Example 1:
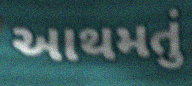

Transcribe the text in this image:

આથમતું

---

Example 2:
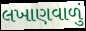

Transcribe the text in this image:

લખાણવાળું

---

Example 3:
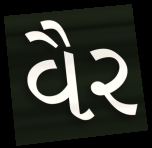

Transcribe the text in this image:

વૈર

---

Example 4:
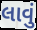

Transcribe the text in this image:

લાવું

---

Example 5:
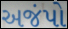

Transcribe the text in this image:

અજંપો